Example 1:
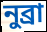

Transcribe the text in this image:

নুব্রা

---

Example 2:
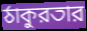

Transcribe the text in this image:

ঠাকুরতার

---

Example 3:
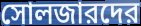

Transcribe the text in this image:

সোলজারদের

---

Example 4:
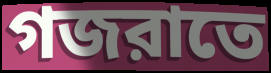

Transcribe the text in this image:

গজরাতে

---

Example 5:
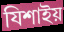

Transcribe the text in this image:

যিশাইয়